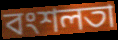
বংশলতা